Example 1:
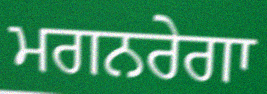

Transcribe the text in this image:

ਮਗਨਰੇਗਾ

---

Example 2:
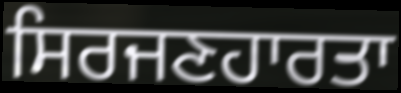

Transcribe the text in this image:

ਸਿਰਜਣਹਾਰਤਾ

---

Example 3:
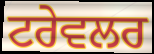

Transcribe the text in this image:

ਟਰੇਵਲਰ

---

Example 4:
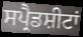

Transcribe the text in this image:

ਸਪ੍ਰੈਡਸ਼ੀਟਾਂ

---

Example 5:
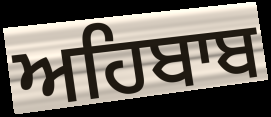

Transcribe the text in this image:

ਅਹਿਬਾਬ